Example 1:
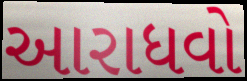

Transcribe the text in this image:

આરાધવો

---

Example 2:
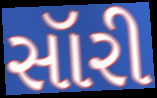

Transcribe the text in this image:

સૉરી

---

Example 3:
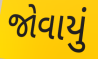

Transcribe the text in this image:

જોવાયું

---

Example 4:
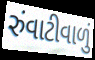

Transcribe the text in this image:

રુંવાટીવાળું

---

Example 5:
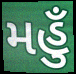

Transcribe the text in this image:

મહુઁ